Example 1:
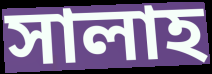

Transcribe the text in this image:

সালাহ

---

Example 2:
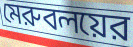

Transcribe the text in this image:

মেরুবলয়ের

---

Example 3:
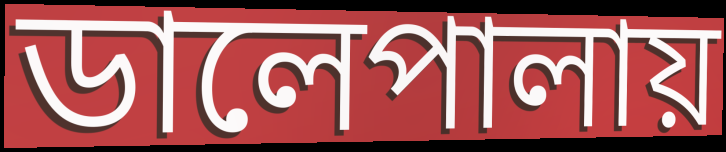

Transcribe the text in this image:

ডালেপালায়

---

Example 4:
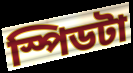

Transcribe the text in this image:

স্পিডটা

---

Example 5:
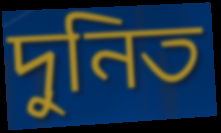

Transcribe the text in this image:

দুনিত